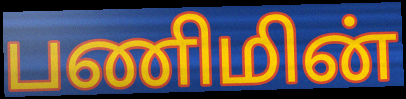
பணிமின்